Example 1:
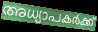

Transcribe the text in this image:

അധ്യാപകർക്ക്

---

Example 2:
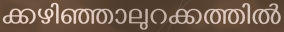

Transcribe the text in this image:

ക്കഴിഞ്ഞാലുറക്കത്തിൽ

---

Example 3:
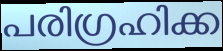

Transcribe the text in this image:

പരിഗ്രഹിക്ക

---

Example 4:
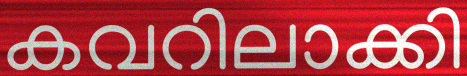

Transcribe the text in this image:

കവറിലാക്കി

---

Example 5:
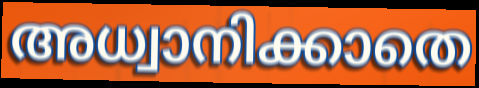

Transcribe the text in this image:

അധ്വാനിക്കാതെ